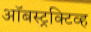
ऑबस्ट्रक्टिव्ह